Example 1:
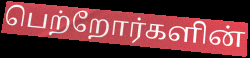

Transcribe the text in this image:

பெற்றோர்களின்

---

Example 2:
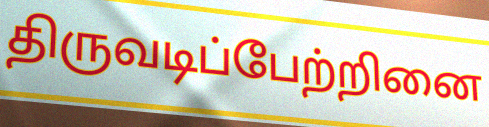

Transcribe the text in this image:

திருவடிப்பேற்றினை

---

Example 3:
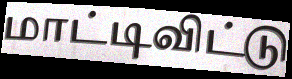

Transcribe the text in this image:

மாட்டிவிட்டு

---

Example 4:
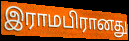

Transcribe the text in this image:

இராமபிரானது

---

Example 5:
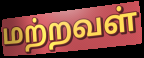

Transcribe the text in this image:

மற்றவள்